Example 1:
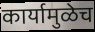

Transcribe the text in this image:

कार्यामुळेच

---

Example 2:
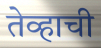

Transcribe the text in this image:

तेव्हाची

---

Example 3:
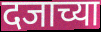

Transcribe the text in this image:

दजाच्या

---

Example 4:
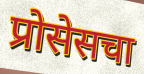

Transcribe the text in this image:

प्रोसेसचा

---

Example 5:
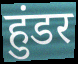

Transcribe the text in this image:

हुंडर